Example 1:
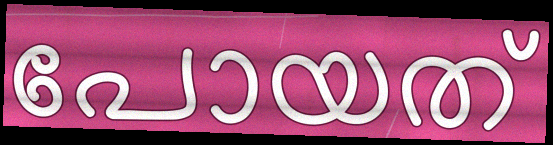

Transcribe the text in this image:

പോയത്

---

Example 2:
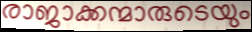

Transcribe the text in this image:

രാജാക്കന്മാരുടെയും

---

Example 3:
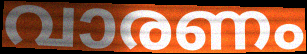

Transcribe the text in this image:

വാരണം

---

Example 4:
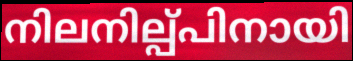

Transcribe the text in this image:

നിലനില്പ്പിനായി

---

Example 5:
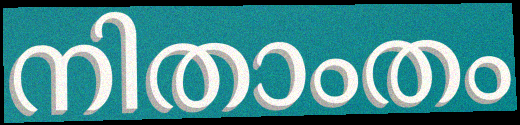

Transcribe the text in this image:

നിതാംതം